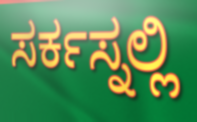
ಸರ್ಕಸ್ನಲ್ಲಿ